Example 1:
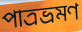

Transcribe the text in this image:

পাত্রভ্রমণ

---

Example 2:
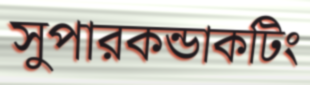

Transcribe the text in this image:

সুপারকন্ডাকটিং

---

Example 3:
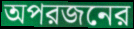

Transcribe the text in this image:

অপরজনের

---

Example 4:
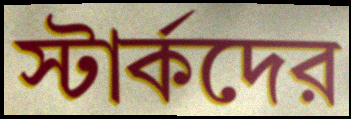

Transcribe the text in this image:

স্টার্কদের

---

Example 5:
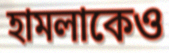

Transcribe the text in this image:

হামলাকেও